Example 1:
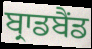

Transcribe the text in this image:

ਬ੍ਰਾਡਬੈਂਡ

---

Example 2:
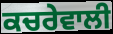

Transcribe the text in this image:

ਕਚਰੇਵਾਲੀ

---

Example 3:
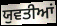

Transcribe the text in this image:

ਯੁਵਤੀਆਂ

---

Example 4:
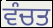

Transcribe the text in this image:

ਵੰਚਤ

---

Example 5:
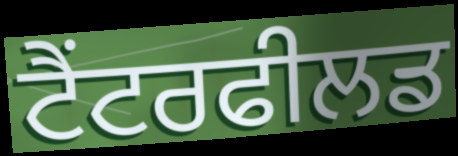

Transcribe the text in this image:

ਟੈਂਟਰਫੀਲਡ